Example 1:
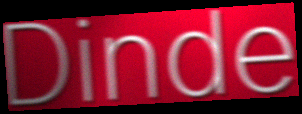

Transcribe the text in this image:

Dinde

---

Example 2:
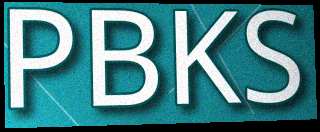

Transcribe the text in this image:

PBKS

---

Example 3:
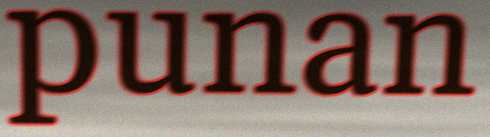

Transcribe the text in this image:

punan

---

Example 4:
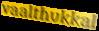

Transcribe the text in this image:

vaalthukkal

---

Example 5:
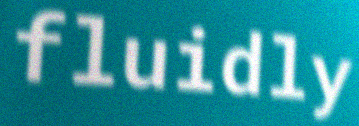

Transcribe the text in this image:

fluidly